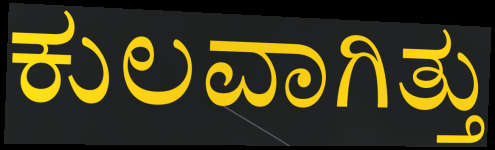
ಕುಲವಾಗಿತ್ತು